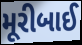
મૂરીબાઈ